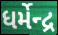
ધર્મેન્દ્ર